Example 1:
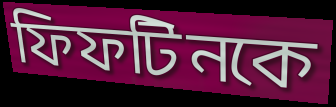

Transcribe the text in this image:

ফিফটিনকে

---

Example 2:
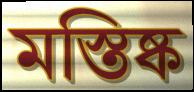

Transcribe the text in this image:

মস্তিষ্ক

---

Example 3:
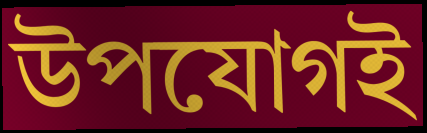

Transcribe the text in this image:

উপযোগই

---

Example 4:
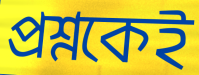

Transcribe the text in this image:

প্রশ্নকেই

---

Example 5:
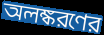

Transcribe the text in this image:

অলঙ্করণের